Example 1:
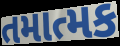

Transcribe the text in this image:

તમાત્મક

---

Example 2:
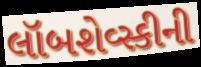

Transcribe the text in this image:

લૉબશેવ્સ્કીની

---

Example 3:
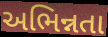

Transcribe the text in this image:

અભિન્નતા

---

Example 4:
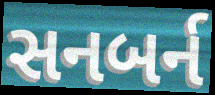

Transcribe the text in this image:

સનબર્ન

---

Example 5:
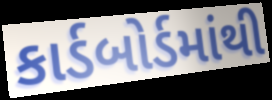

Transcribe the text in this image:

કાર્ડબોર્ડમાંથી